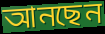
আনছেন